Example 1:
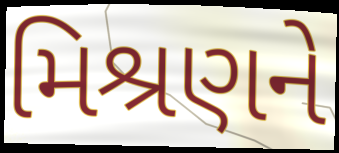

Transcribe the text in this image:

મિશ્રણને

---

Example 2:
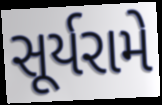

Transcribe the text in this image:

સૂર્યરામે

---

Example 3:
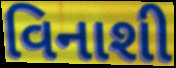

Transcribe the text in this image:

વિનાશી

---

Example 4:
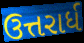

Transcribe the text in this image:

ઉત્તરાર્ધ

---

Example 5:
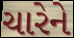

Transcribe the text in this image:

ચારેને